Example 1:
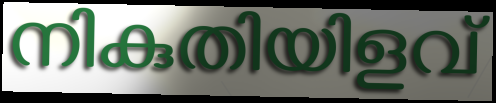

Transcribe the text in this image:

നികുതിയിളവ്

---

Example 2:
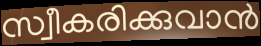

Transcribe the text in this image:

സ്വീകരിക്കുവാൻ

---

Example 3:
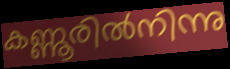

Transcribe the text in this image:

കണ്ണൂരിൽനിന്നു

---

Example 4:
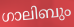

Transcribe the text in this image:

ഗാലിബും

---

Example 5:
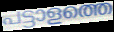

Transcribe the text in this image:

പട്ടാളത്തെ